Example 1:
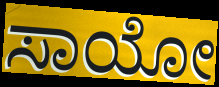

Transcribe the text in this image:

ಸಾಯೋ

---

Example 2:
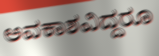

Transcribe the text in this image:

ಅವಕಾಶವಿದ್ದರೂ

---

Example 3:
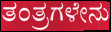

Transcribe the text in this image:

ತಂತ್ರಗಳೇನು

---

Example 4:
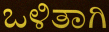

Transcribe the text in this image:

ಒಳಿತಾಗಿ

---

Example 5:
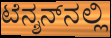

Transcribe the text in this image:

ಟೆನ್ಶನ್‌ನಲ್ಲಿ